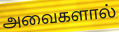
அவைகளால்